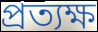
প্ৰত্যক্ষ